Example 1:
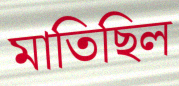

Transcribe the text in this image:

মাতিছিল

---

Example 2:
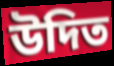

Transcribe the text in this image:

উদিত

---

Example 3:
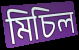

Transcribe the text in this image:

মিচিল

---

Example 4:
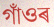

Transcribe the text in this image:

গাঁওৰ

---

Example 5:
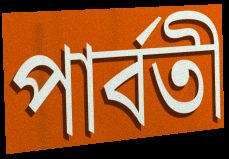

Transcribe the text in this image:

পাৰ্বতী